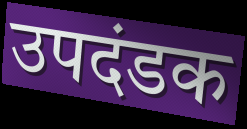
उपदंडक